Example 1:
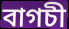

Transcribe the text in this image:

বাগচী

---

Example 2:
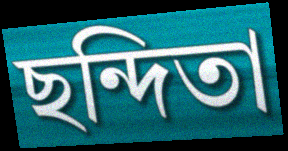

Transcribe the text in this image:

ছন্দিতা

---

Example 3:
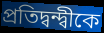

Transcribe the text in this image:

প্রতিদ্বন্দ্বীকে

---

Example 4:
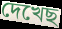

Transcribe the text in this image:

দেখেছ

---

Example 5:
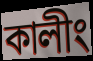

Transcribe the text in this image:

কালীং